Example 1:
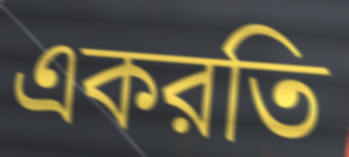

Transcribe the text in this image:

একরতি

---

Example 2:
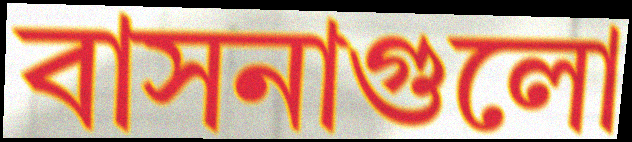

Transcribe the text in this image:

বাসনাগুলো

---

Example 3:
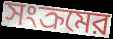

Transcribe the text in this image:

সংক্রমের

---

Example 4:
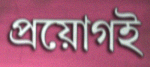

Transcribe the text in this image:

প্রয়োগই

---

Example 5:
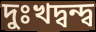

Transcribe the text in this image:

দুঃখদ্বন্দ্ব